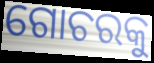
ଗୋଚରକୁ